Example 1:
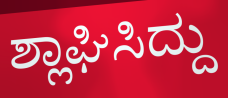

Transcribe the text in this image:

ಶ್ಲಾಘಿಸಿದ್ದು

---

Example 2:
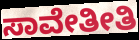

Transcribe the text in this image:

ಸಾವೇತೀತಿ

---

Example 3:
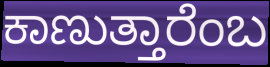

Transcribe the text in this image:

ಕಾಣುತ್ತಾರೆಂಬ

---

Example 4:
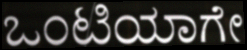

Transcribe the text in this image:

ಒಂಟಿಯಾಗೇ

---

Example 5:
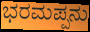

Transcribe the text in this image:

ಭರಮಪ್ಪನು